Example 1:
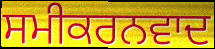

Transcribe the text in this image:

ਸਮੀਕਰਨਵਾਦ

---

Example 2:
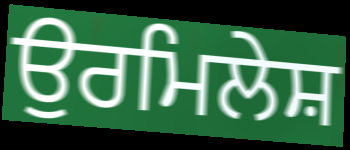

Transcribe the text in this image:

ਉਰਮਿਲੇਸ਼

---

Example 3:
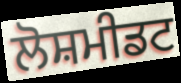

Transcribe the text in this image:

ਲੋਸ਼ਮੀਡਟ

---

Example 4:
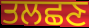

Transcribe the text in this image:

ਤਲਛਣ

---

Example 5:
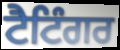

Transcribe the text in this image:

ਟੈਟਿੰਗਰ